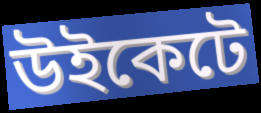
উইকেটে